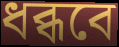
ধব্ধবে